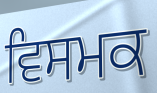
ਵਿਸਮਕ